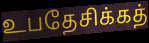
உபதேசிக்கத்